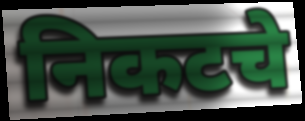
निकटचे